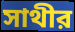
সাথীর